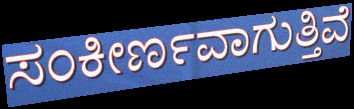
ಸಂಕೀರ್ಣವಾಗುತ್ತಿವೆ